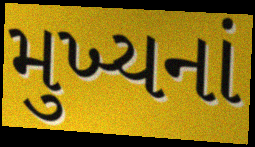
મુખ્યનાં